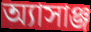
অ্যাসাঞ্জ